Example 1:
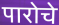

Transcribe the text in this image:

पारोचे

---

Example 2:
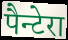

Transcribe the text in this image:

पैन्टेरा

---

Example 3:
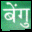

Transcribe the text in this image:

बेंगु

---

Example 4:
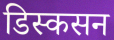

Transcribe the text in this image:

डिस्कसन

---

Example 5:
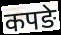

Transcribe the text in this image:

कपङे